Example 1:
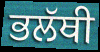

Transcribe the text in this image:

ਭਲੱਥੀ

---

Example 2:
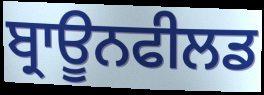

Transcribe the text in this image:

ਬ੍ਰਾਊਨਫੀਲਡ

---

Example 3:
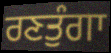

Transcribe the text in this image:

ਰਣਤੁੰਗਾ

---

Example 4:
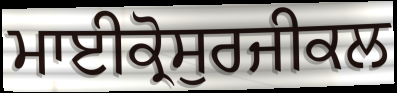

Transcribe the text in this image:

ਮਾਈਕ੍ਰੋਸੁਰਜੀਕਲ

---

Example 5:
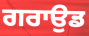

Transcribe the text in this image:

ਗਰਾਉਡ